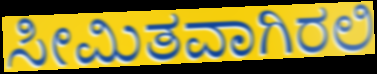
ಸೀಮಿತವಾಗಿರಲಿ